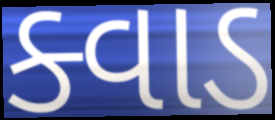
ક્વાડ